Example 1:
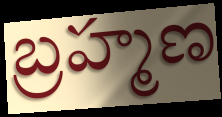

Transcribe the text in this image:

బ్రహ్మణ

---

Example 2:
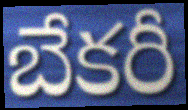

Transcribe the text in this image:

బేకరీ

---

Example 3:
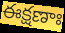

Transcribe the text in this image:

ఈక్షణాః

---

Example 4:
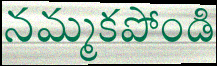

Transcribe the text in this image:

నమ్మకపోండి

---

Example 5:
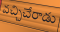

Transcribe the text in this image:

వచ్చిచేరాడు